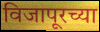
विजापूरच्या